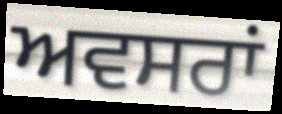
ਅਵਸਰਾਂ